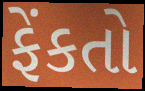
ફેંકતો